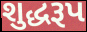
શુદ્ધરૂપ